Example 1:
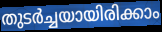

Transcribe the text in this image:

തുടർച്ചയായിരിക്കാം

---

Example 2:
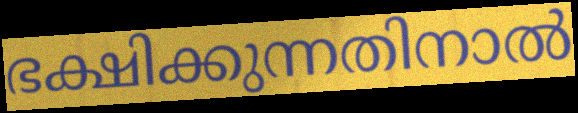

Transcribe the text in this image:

ഭക്ഷിക്കുന്നതിനാൽ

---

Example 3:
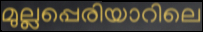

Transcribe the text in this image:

മുല്ലപ്പെരിയാറിലെ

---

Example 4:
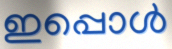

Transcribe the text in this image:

ഇപ്പൊൾ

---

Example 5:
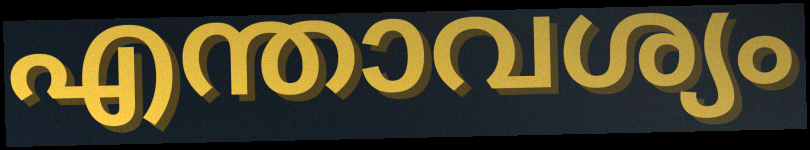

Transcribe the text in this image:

എന്താവശ്യം